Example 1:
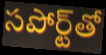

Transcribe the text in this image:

సపోర్ట్‌తో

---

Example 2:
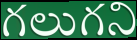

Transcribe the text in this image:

గలుగని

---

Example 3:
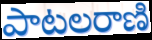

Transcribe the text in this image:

పాటలరాణి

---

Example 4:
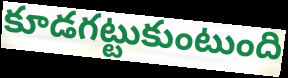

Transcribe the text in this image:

కూడగట్టుకుంటుంది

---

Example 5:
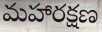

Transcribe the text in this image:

మహారక్షణ